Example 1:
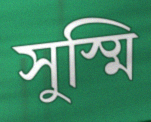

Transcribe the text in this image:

সুস্মি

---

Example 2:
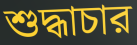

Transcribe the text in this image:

শুদ্ধাচার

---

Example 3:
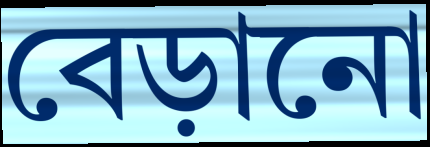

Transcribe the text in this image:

বেড়ানো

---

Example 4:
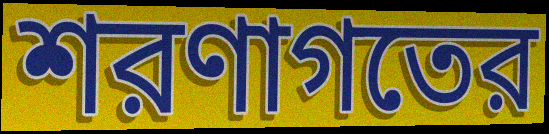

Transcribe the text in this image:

শরণাগতের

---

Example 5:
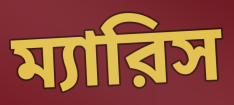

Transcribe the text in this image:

ম্যারিস